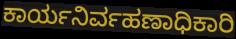
ಕಾರ್ಯನಿರ್ವಹಣಾಧಿಕಾರಿ